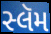
સ્લૅમ